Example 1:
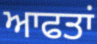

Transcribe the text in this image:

ਆਫਤਾਂ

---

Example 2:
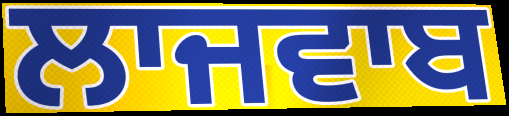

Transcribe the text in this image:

ਲਾਜਵਾਬ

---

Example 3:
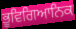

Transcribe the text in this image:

ਭੂਵਿਗਿਆਨਿਕ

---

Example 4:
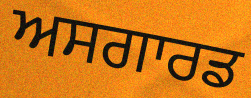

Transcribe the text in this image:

ਅਸਗਾਰਡ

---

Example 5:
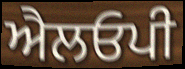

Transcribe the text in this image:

ਐਲਓਪੀ